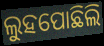
ଲୁହପୋଛିଲି